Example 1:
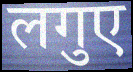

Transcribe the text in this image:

लगुए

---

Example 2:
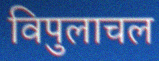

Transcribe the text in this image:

विपुलाचल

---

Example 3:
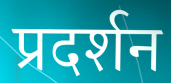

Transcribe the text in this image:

प्रदर्शन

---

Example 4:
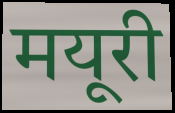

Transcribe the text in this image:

मयूरी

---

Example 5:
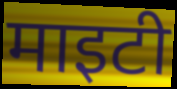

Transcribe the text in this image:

माइटी